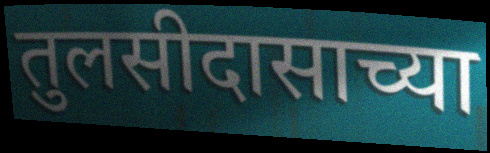
तुलसीदासाच्या